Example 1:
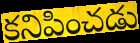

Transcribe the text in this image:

కనిపించడు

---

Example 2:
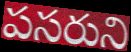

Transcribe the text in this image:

పసరుని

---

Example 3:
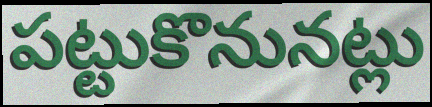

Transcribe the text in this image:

పట్టుకొనునట్లు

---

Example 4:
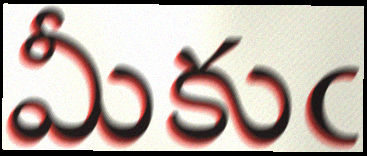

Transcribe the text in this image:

మీకుఁ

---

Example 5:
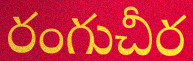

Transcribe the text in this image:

రంగుచీర